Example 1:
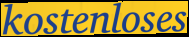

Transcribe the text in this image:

kostenloses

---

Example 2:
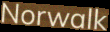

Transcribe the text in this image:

Norwalk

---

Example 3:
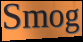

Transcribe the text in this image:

Smog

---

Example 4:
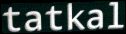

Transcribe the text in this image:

tatkal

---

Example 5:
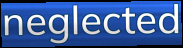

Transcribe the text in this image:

neglected